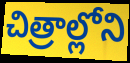
చిత్రాల్లోని